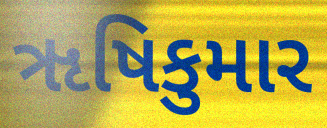
ૠષિકુમાર